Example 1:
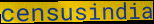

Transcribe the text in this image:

censusindia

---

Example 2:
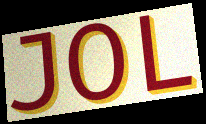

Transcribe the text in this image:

JOL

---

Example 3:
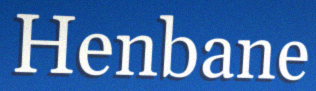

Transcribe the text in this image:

Henbane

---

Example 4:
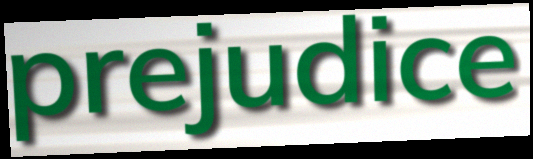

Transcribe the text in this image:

prejudice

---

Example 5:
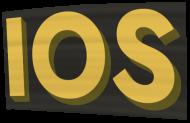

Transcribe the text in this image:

IOS